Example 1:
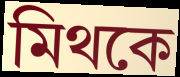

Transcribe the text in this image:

মিথকে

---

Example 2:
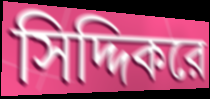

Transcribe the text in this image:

সিদ্দিকরে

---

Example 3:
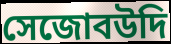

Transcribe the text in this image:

সেজোবউদি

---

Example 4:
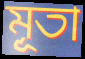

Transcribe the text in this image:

মূতা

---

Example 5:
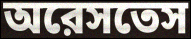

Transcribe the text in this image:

অরেসতেস